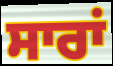
ਸਾਰਾਂ